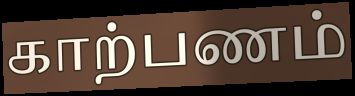
காற்பணம்